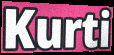
Kurti